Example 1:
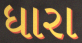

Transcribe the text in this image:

ધારા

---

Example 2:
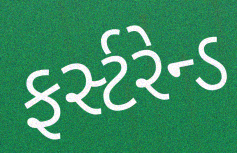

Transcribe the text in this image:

ફર્સ્ટરેન્ડ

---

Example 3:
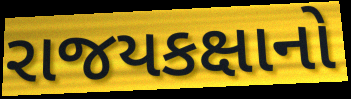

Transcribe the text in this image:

રાજયકક્ષાનો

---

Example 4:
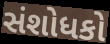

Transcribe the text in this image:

સંશોધકો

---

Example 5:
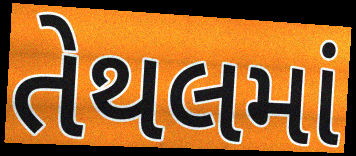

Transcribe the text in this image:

તેથલમાં